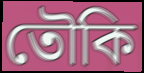
তৌকি